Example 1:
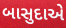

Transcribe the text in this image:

બાસુદાએ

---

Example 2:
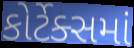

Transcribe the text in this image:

કોર્ટેક્સમાં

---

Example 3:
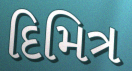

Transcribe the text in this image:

દિમિત્ર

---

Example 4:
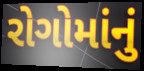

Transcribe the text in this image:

રોગોમાંનું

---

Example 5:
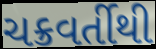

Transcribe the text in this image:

ચક્રવર્તીથી